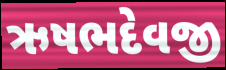
ઋષભદેવજી